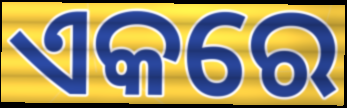
ଏକରେ